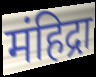
मंहिद्रा